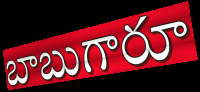
బాబుగారూ